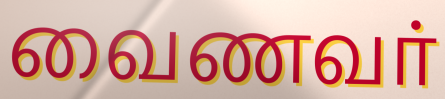
வைணவர்